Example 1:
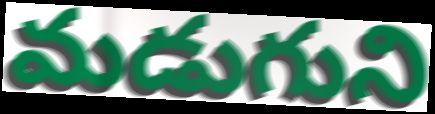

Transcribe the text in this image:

మడుగుని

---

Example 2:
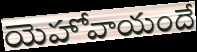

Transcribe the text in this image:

యెహోవాయందే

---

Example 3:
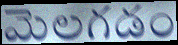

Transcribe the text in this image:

మెలగడం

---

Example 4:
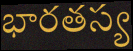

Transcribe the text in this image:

భారతస్య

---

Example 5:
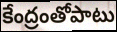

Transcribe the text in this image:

కేంద్రంతోపాటు